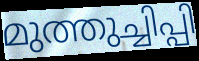
മുത്തുച്ചിപ്പി